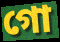
গো